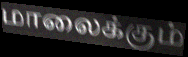
மாலைக்கும்